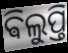
ଵିଲୁପ୍ତି